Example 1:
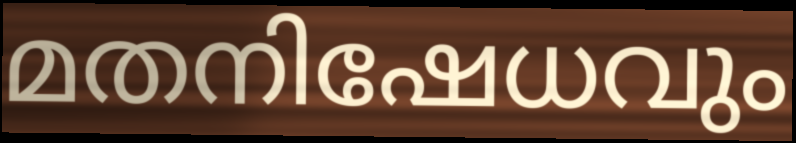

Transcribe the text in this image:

മതനിഷേധവും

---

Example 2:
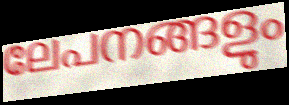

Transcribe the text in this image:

ലേപനങ്ങളും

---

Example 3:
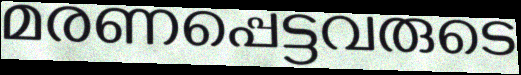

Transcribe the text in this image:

മരണപ്പെട്ടവരുടെ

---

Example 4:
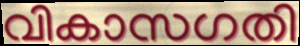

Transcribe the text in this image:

വികാസഗതി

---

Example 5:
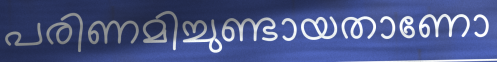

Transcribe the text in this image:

പരിണമിച്ചുണ്ടായതാണോ